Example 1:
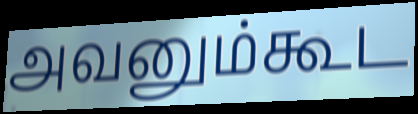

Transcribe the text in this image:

அவனும்கூட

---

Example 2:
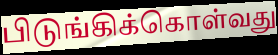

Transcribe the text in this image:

பிடுங்கிக்கொள்வது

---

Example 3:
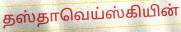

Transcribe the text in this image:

தஸ்தாவெய்ஸ்கியின்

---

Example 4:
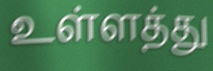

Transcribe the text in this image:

உள்ளத்து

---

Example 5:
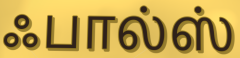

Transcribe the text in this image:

ஃபால்ஸ்